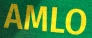
AMLO